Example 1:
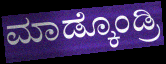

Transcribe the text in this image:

ಮಾಡ್ಕೊಂಡ್ರಿ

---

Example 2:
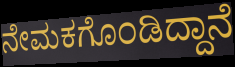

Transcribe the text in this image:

ನೇಮಕಗೊಂಡಿದ್ದಾನೆ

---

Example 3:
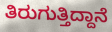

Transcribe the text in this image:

ತಿರುಗುತ್ತಿದ್ದಾನೆ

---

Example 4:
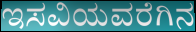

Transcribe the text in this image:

ಇಸವಿಯವರೆಗಿನ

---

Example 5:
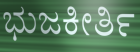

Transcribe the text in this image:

ಭುಜಕೀರ್ತಿ